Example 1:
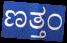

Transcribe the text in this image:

ಣತ್ತಂ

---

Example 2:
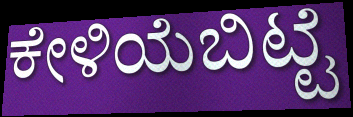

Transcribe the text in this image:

ಕೇಳಿಯೆಬಿಟ್ಟೆ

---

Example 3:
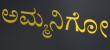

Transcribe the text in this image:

ಅಮ್ಮನಿಗೋ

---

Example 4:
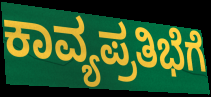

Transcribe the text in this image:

ಕಾವ್ಯಪ್ರತಿಭೆಗೆ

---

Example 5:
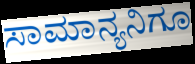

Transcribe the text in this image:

ಸಾಮಾನ್ಯನಿಗೂ